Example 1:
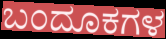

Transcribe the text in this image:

ಬಂದೂಕಗಳ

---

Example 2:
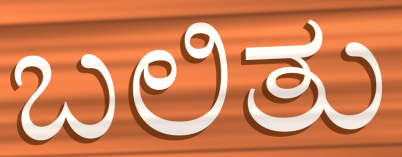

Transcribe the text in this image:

ಬಲಿತು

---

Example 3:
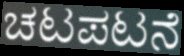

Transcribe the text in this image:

ಚಟಪಟನೆ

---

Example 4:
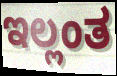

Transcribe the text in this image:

ಇಲ್ಲಂತ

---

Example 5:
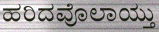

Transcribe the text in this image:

ಹರಿದವೊಲಾಯ್ತು